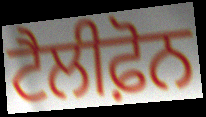
ਟੈਲੀਫ਼ੋਨ